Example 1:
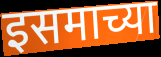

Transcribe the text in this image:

इसमाच्या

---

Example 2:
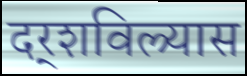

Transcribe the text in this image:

दर्शविल्यास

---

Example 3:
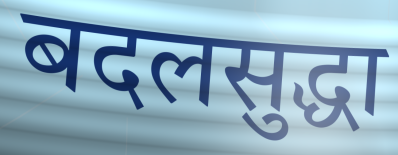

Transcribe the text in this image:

बदलसुद्धा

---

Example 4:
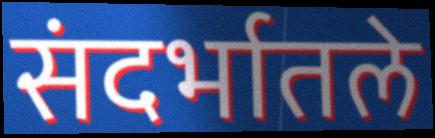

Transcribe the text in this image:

संदर्भातले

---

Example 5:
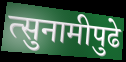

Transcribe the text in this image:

त्सुनामीपुढे